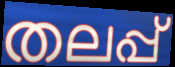
തലപ്പ്